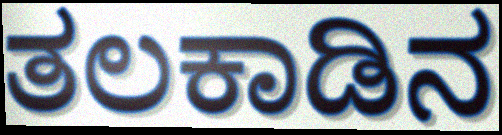
ತಲಕಾಡಿನ